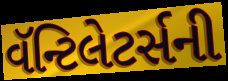
વૅન્ટિલેટર્સની